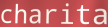
charita